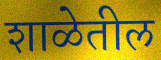
शाळेतील